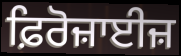
ਫ਼ਿਰੋਜ਼ਾਈਜ਼